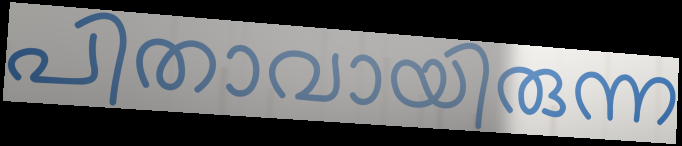
പിതാവായിരുന്ന